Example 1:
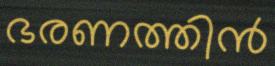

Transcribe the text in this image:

ഭരണത്തിൻ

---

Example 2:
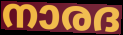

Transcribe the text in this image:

നാരദ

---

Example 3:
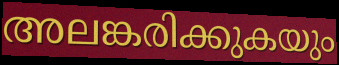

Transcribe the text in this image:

അലങ്കരിക്കുകയും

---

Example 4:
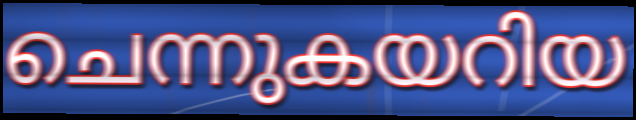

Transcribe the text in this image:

ചെന്നുകയറിയ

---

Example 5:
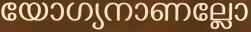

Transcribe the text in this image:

യോഗ്യനാണല്ലോ